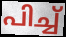
പിച്ച്